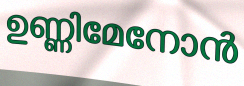
ഉണ്ണിമേനോൻ